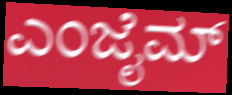
ಎಂಜೈಮ್